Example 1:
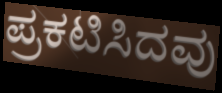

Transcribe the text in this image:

ಪ್ರಕಟಿಸಿದವು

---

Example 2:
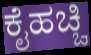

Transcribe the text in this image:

ಕೈಹಚ್ಚಿ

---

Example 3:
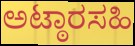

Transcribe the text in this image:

ಅಟ್ಠಾರಸಹಿ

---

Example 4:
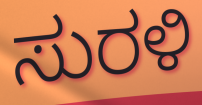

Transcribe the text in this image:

ಸುರಳಿ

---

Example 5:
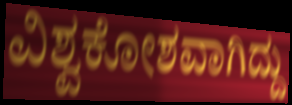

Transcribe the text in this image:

ವಿಶ್ವಕೋಶವಾಗಿದ್ದು